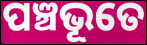
ପଞ୍ଚଭୂତେ